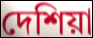
দেশিয়া